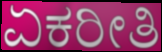
ಏಕರೀತಿ